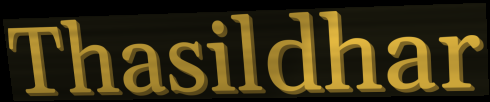
Thasildhar